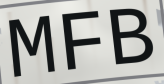
MFB